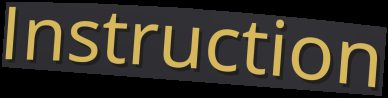
Instruction